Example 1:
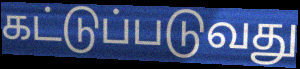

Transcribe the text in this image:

கட்டுப்படுவது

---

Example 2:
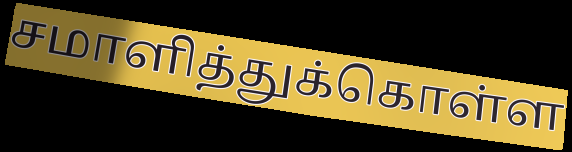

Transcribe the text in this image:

சமாளித்துக்கொள்ள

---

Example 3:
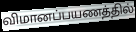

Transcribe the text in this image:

விமானப்பயணத்தில்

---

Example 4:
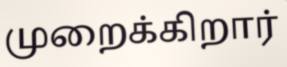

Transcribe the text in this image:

முறைக்கிறார்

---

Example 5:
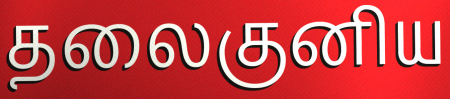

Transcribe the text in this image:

தலைகுனிய